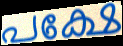
പക്ഷേ